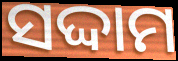
ସଦ୍ଦାମ